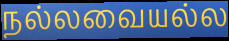
நல்லவையல்ல